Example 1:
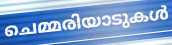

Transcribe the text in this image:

ചെമ്മരിയാടുകൾ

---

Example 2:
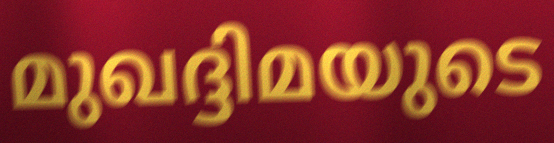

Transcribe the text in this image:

മുഖദ്ദിമയുടെ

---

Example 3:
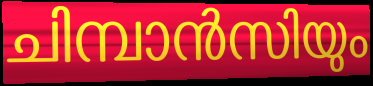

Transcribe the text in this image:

ചിമ്പാൻസിയും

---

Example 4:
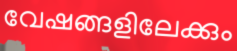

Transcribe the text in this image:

വേഷങ്ങളിലേക്കും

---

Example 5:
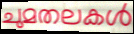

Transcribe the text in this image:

ചുമതലകൾ